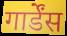
गार्डेंस